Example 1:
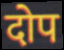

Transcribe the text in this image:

दोप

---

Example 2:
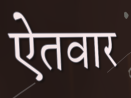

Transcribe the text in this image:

ऐतवार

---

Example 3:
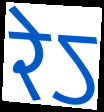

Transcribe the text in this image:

रेऽ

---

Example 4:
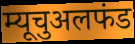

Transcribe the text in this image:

म्यूचुअलफंड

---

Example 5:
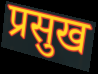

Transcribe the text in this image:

प्रसुख